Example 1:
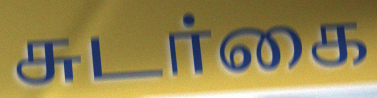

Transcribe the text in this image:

சுடர்கை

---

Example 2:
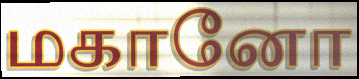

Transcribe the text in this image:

மகானோ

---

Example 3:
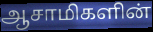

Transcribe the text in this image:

ஆசாமிகளின்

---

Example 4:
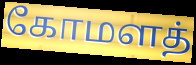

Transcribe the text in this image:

கோமளத்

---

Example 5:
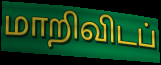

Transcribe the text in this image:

மாறிவிடப்